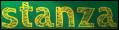
stanza